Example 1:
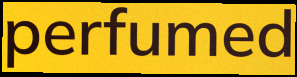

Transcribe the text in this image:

perfumed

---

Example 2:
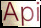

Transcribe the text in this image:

Api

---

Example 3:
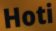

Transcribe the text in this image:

Hoti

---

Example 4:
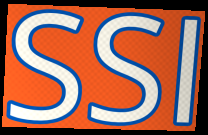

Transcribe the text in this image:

SSI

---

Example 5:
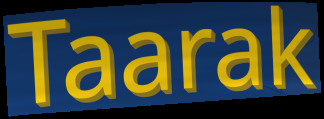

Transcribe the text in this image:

Taarak